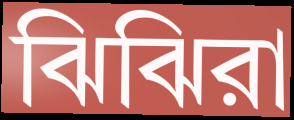
ঝিঝিরা